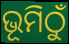
ଭୂମିଠୁଁ